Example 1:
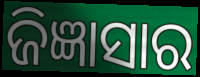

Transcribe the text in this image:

ଜିଜ୍ଞାସାର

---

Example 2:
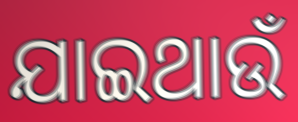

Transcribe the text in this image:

ଯାଇଥାଉଁ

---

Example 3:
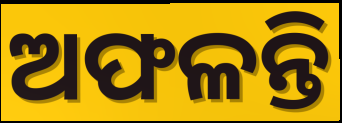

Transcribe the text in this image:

ଅଫଳନ୍ତି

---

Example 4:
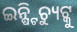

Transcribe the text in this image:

ଇନ୍ଷ୍ଟିଚ୍ୟୁଟ୍କୁ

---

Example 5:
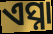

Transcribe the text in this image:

ଏସ୍ନା